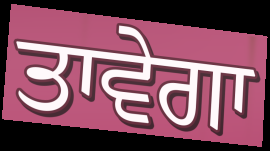
ਤਾਵੇਗਾ